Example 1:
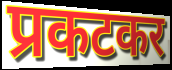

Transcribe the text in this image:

प्रकटकर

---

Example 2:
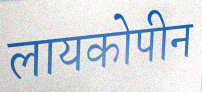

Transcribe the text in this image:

लायकोपीन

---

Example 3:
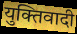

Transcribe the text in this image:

युक्तिवादी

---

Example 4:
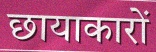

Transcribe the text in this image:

छायाकारों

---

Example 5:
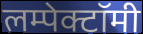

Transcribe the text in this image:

लम्पेक्टॉमी